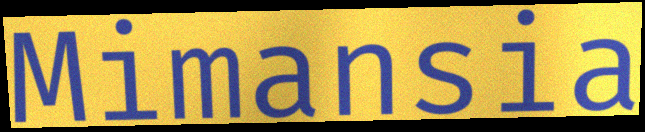
Mimansia